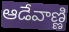
ఆడేవాణ్ణి